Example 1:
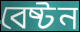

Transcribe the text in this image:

বেষ্টন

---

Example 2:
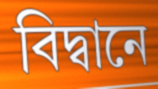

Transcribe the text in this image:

বিদ্বানে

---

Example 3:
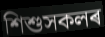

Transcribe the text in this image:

শিশুসকলৰ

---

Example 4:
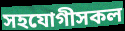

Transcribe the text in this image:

সহযোগীসকল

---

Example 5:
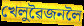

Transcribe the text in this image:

খেলুৱৈজনলৈ